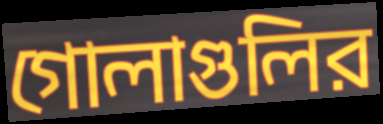
গোলাগুলির